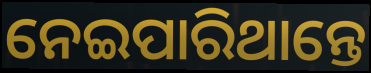
ନେଇପାରିଥାନ୍ତେ